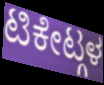
ಟಿಕೇಟ್ಗಳ